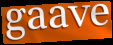
gaave